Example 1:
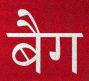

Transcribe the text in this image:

बैग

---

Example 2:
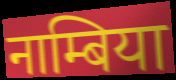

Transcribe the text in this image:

नाम्बिया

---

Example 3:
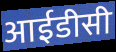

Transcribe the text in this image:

आईडीसी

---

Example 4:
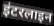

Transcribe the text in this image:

इंटरलाइन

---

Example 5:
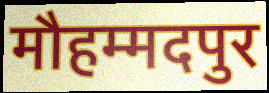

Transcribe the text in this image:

मौहम्मदपुर